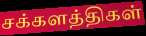
சக்களத்திகள்